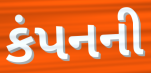
કંપનની